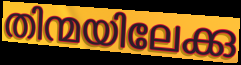
തിന്മയിലേക്കു